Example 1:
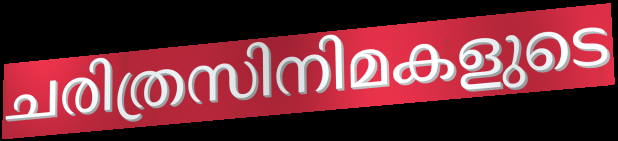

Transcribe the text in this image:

ചരിത്രസിനിമകളുടെ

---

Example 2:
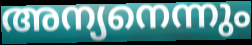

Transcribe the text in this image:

അന്യനെന്നും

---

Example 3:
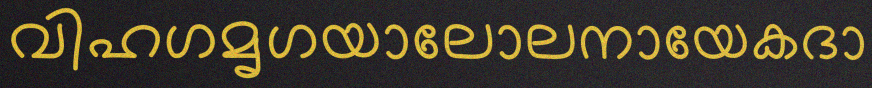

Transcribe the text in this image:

വിഹഗമൃഗയാലോലനായേകദാ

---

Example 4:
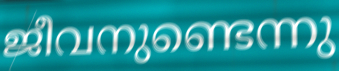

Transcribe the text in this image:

ജീവനുണ്ടെന്നു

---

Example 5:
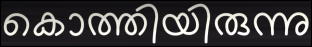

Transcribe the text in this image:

കൊത്തിയിരുന്നു